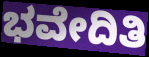
ಭವೇದಿತಿ